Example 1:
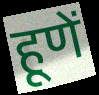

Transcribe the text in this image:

हूणें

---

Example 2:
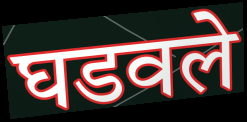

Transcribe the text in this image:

घडवले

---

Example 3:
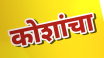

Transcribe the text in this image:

कोशांचा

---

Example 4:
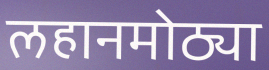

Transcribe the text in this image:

लहानमोठ्या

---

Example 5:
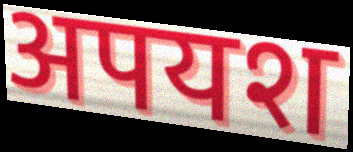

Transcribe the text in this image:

अपयश